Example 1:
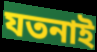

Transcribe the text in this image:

যতনাই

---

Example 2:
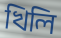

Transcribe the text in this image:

খিলি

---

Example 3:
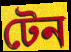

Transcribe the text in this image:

টেন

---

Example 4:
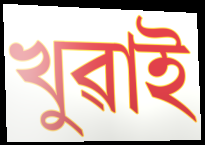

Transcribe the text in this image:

খুৱাই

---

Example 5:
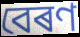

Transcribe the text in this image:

বেৰণ